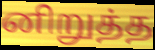
னிறுத்த